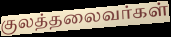
குலத்தலைவர்கள்